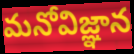
మనోవిజ్ఞాన